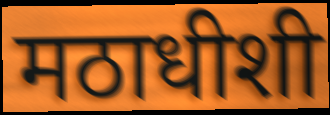
मठाधीशी